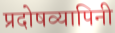
प्रदोषव्यापिनी